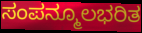
ಸಂಪನ್ಮೂಲಭರಿತ